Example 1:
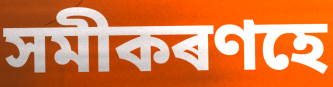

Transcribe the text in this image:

সমীকৰণহে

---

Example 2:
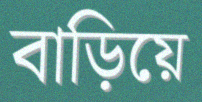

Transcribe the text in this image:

বাড়িয়ে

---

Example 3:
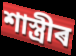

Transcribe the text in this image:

শাস্ত্ৰীৰ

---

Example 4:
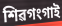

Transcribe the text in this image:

শিৱগংগাই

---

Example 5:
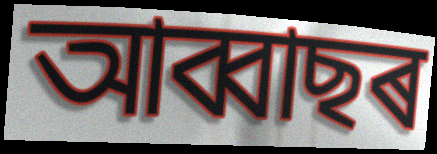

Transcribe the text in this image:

আব্বাছৰ